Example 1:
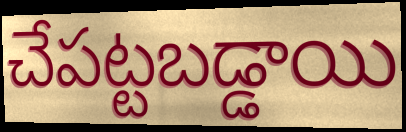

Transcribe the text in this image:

చేపట్టబడ్డాయి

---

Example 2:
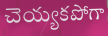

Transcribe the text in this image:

చెయ్యకపోగా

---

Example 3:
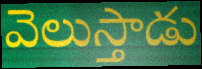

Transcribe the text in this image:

వెలుస్తాడు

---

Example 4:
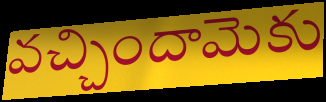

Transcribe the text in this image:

వచ్చిందామెకు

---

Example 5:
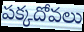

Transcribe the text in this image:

పక్కదోవలు